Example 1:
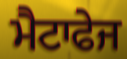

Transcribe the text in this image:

ਮੈਟਾਫੇਜ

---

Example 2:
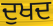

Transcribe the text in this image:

ਦੁਖਦ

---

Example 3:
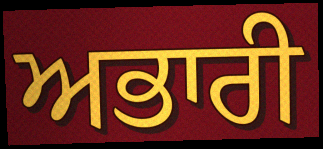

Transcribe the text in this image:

ਅਭਾਰੀ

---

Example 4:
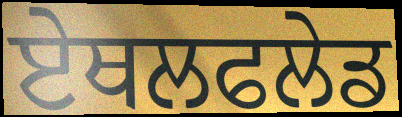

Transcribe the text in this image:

ਏਥਲਫਲੇਡ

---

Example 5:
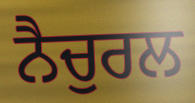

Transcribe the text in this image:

ਨੈਚੁਰਲ